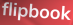
flipbook